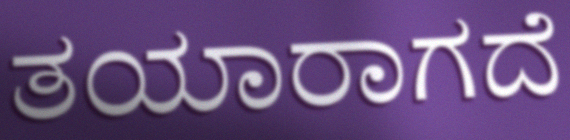
ತಯಾರಾಗದೆ